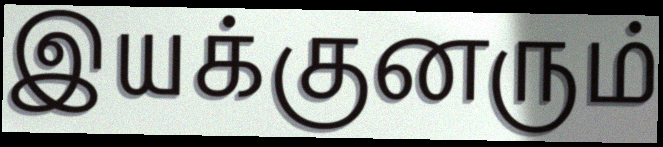
இயக்குனரும்